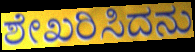
ಶೇಖರಿಸಿದನು